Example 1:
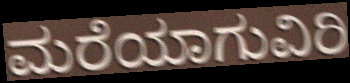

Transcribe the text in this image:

ಮರೆಯಾಗುವಿರಿ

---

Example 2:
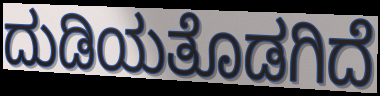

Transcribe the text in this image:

ದುಡಿಯತೊಡಗಿದೆ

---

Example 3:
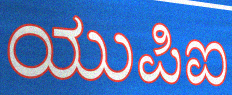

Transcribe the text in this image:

ಯುಪಿಐ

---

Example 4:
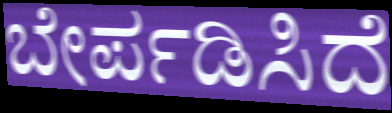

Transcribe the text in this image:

ಬೇರ್ಪಡಿಸಿದೆ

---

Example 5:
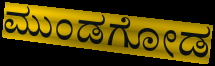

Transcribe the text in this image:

ಮುಂಡಗೋಡ